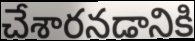
చేశారనడానికి